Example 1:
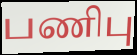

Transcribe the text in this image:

பணிபு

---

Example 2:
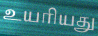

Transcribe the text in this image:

உயரியது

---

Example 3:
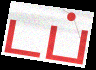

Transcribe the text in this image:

டப்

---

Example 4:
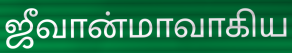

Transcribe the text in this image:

ஜீவான்மாவாகிய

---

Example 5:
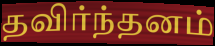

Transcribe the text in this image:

தவிர்ந்தனம்